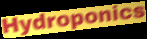
Hydroponics